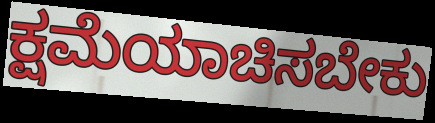
ಕ್ಷಮೆಯಾಚಿಸಬೇಕು